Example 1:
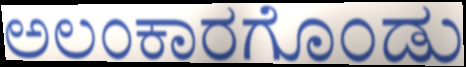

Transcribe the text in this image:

ಅಲಂಕಾರಗೊಂಡು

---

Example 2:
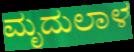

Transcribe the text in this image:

ಮೃದುಲಾಳ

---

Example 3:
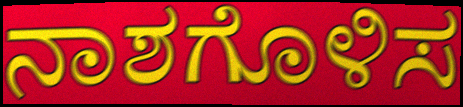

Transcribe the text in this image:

ನಾಶಗೊಳಿಸ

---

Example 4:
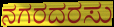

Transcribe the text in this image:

ನಗರದರಸು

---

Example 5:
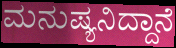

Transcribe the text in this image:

ಮನುಷ್ಯನಿದ್ದಾನೆ